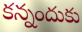
కన్నందుకు